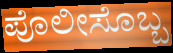
ಪೊಲೀಸೊಬ್ಬ